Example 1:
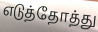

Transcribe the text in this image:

எடுத்தோத்து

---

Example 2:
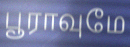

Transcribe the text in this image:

பூராவுமே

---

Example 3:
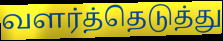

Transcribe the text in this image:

வளர்த்தெடுத்து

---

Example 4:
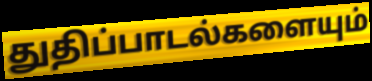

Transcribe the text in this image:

துதிப்பாடல்களையும்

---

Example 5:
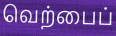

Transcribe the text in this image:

வெற்பைப்